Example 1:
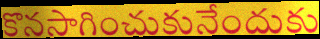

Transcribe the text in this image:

కొనసాగించుకునేందుకు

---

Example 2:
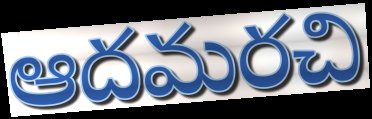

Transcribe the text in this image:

ఆదమరచి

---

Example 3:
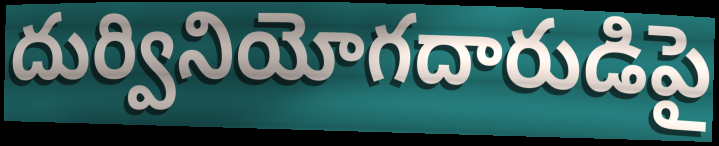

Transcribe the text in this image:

దుర్వినియోగదారుడిపై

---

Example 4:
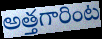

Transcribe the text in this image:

అత్తగారింట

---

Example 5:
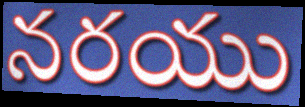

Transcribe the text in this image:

నరయు